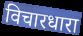
विचारधारा